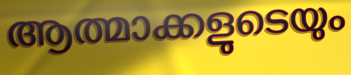
ആത്മാക്കളുടെയും